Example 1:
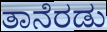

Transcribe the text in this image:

ತಾನೆರಡು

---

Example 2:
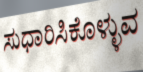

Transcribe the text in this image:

ಸುಧಾರಿಸಿಕೊಳ್ಳುವ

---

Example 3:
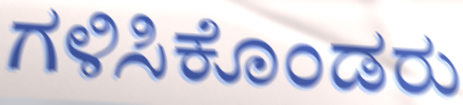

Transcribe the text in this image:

ಗಳಿಸಿಕೊಂಡರು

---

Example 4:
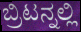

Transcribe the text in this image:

ಬ್ರಿಟನ್ನಲ್ಲಿ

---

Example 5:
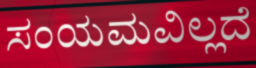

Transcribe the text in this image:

ಸಂಯಮವಿಲ್ಲದೆ